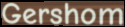
Gershom